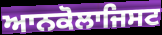
ਆਨਕੋਲਾਜਿਸਟ